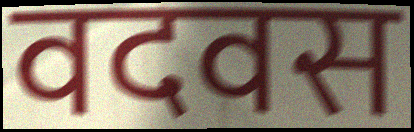
वदवस